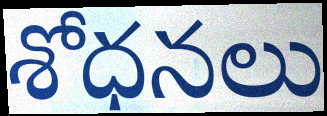
శోధనలు